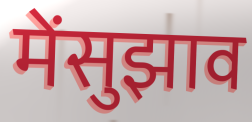
मेंसुझाव